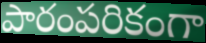
పారంపరికంగా